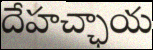
దేహచ్ఛాయ